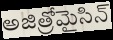
అజిత్రోమైసిన్